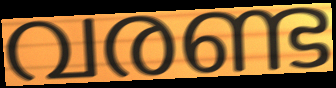
വരണ്ട